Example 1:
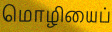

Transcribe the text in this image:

மொழியைப்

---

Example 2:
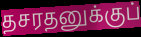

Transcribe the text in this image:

தசரதனுக்குப்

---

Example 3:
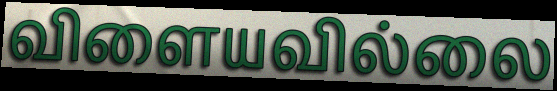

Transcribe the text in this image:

விளையவில்லை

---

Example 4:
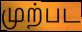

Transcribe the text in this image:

முற்பட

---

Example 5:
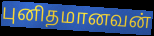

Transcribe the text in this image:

புனிதமானவன்